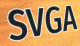
SVGA